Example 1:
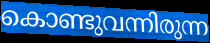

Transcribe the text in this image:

കൊണ്ടുവന്നിരുന്ന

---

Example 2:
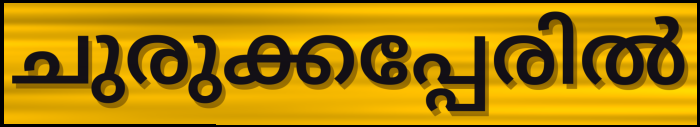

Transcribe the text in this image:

ചുരുക്കപ്പേരിൽ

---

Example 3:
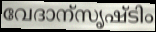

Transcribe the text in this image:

വേദാന്സൃഷ്ടിം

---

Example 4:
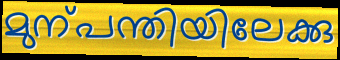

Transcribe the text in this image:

മുന്പന്തിയിലേക്കു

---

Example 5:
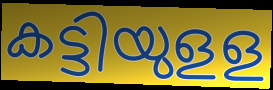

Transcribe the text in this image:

കട്ടിയുളള